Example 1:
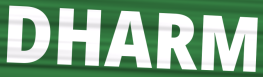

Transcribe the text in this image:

DHARM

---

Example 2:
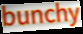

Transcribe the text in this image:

bunchy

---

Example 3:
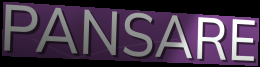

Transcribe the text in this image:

PANSARE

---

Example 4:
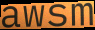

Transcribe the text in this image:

awsm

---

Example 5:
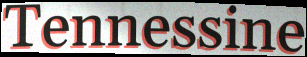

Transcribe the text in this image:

Tennessine